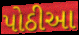
પોઠીઆ